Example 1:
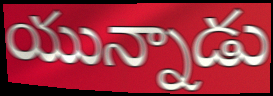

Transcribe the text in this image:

యున్నాడు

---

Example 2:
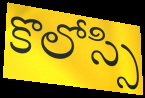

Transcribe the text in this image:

కొలోస్సి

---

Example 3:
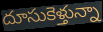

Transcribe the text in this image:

దూసుకెళ్తున్నా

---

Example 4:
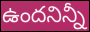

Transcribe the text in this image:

ఉందనిన్నీ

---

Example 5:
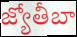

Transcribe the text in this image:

జ్యోతీబా